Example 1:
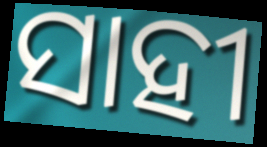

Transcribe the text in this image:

ସାହୀ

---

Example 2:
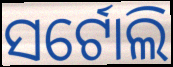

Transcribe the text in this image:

ସର୍ଟୋଲି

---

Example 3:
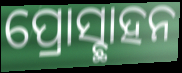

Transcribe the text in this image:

ପ୍ରୋସ୍ଛାହନ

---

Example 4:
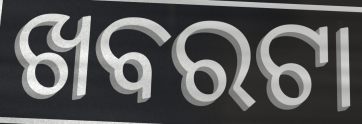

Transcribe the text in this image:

ଖବରଟା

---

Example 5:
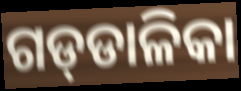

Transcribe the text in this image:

ଗଡ୍‍ଡାଳିକା